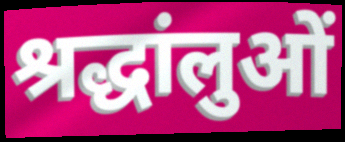
श्रद्धांलुओं